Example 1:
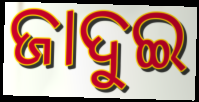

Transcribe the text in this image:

ଜାଦୁଇ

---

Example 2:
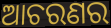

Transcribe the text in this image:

ଆଚରଣର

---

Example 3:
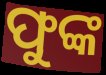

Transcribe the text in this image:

ଫୁଙ୍କ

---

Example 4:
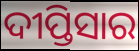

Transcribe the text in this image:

ଦୀପ୍ତିସାର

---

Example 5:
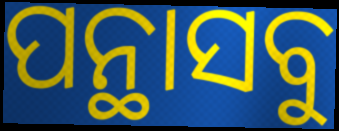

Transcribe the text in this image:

ପନ୍ଥାସବୁ